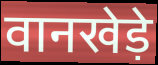
वानखेड़े